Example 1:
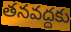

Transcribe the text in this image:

తనవద్దకు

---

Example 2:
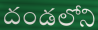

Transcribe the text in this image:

దండలోని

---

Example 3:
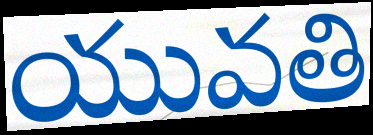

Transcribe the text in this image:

యువతి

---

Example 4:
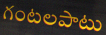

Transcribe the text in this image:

గంటలపాటు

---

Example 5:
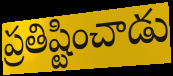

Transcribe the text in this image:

ప్రతిష్టించాడు